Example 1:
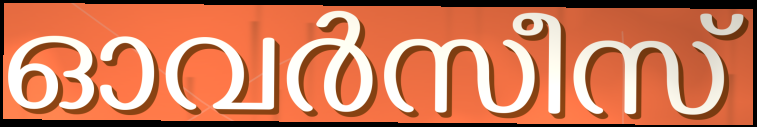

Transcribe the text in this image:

ഓവർസീസ്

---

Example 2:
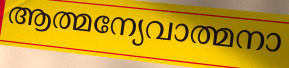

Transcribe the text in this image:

ആത്മന്യേവാത്മനാ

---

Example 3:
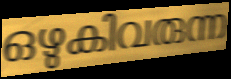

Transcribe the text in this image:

ഒഴുകിവരുന്ന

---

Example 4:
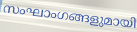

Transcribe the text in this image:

സംഘാംഗങ്ങളുമായി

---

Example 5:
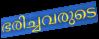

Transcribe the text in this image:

ഭരിച്ചവരുടെ